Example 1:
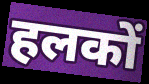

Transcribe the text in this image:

हलकों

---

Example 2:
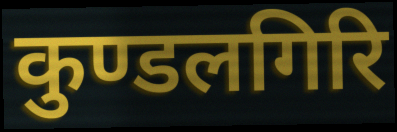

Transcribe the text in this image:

कुण्डलगिरि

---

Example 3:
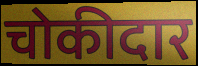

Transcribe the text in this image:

चोकीदार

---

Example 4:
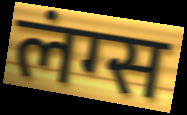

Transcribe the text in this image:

लंग्स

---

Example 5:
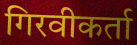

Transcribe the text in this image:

गिरवीकर्ता